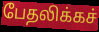
பேதலிக்கச்